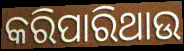
କରିପାରିଥାଉ